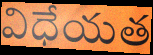
విధేయత